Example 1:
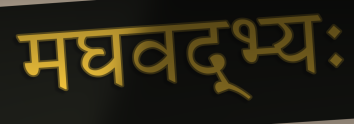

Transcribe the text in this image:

मघवद्भ्यः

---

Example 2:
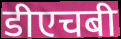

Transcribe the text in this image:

डीएचबी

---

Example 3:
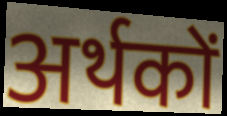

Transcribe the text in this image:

अर्थकों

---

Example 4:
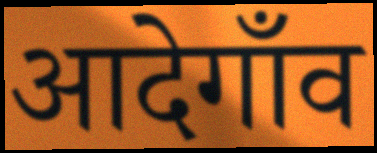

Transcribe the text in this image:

आदेगाँव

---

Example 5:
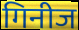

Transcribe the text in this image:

गिनीज